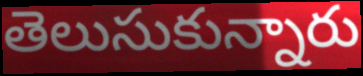
తెలుసుకున్నారు